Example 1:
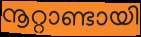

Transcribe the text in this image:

നൂറ്റാണ്ടായി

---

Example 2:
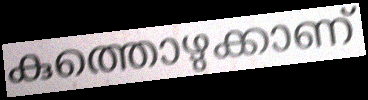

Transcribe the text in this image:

കുത്തൊഴുക്കാണ്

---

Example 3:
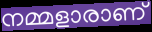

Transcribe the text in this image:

നമ്മളാരാണ്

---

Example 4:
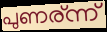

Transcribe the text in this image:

പുണര്ന്ന്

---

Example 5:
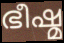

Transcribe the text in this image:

ഭീഷ്മ